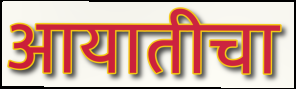
आयातीचा